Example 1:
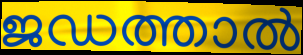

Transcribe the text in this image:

ജഡത്താൽ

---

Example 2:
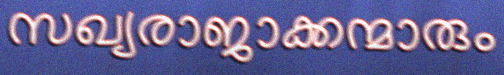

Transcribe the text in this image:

സഖ്യരാജാക്കന്മാരും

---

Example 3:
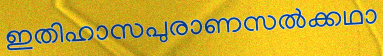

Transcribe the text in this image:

ഇതിഹാസപുരാണസൽക്കഥാ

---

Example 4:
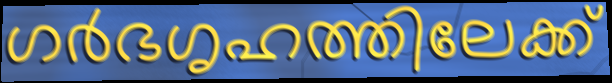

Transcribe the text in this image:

ഗർഭഗൃഹത്തിലേക്ക്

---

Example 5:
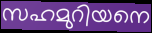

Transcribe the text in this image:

സഹമുറിയനെ